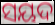
ସୟଦ